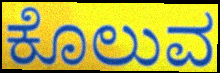
ಕೊಲುವ